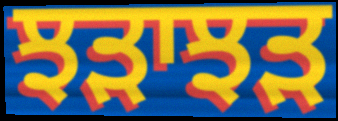
ਝੜਾਝੜ